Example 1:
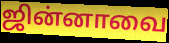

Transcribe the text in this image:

ஜின்னாவை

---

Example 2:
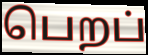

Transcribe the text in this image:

பெறப்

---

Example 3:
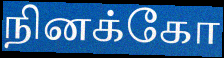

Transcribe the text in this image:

நினக்கோ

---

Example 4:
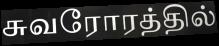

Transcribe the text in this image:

சுவரோரத்தில்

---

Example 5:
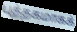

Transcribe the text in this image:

புத்தகமாகக்